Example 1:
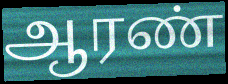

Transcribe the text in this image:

ஆரண்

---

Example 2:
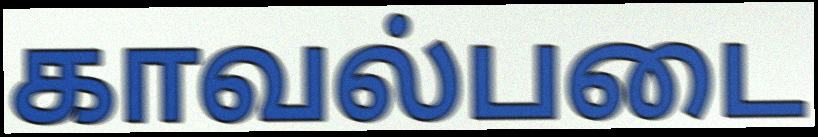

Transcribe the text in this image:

காவல்படை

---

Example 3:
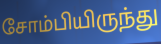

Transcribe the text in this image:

சோம்பியிருந்து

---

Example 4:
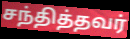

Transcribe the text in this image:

சந்தித்தவர்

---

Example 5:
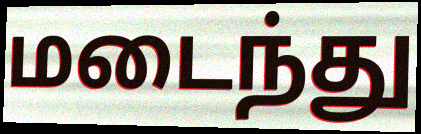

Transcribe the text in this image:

மடைந்து